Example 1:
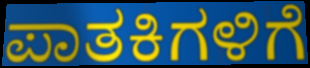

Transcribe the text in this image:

ಪಾತಕಿಗಳಿಗೆ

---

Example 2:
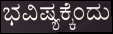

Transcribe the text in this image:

ಭವಿಷ್ಯಕ್ಕೆಂದು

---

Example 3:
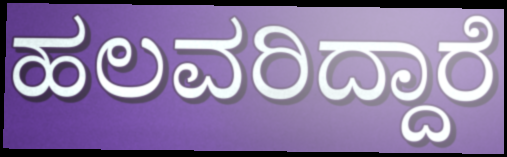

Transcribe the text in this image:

ಹಲವರಿದ್ದಾರೆ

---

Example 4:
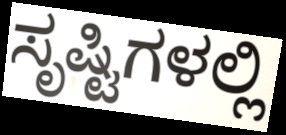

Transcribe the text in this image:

ಸೃಷ್ಟಿಗಳಲ್ಲಿ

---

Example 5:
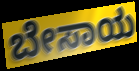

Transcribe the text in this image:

ಬೇಸಾಯ